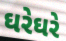
ઘરેઘરે